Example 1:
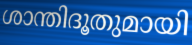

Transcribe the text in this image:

ശാന്തിദൂതുമായി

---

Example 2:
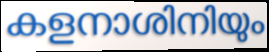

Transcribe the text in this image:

കളനാശിനിയും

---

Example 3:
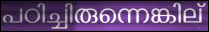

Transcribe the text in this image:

പഠിച്ചിരുന്നെങ്കില്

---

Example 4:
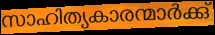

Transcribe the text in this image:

സാഹിത്യകാരന്മാർക്കു്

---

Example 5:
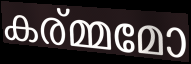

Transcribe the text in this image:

കര്മ്മമോ